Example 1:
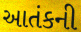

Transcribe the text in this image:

આતંકની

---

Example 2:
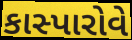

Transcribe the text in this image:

કાસ્પારોવે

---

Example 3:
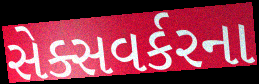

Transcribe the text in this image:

સેક્સવર્કરના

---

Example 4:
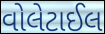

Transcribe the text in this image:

વોલેટાઈલ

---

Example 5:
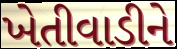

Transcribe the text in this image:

ખેતીવાડીને